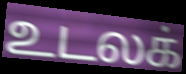
உடலக்